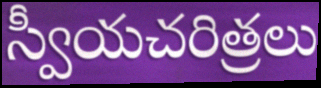
స్వీయచరిత్రలు